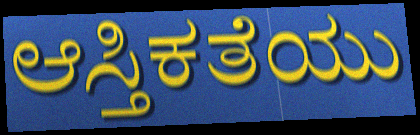
ಆಸ್ತಿಕತೆಯು